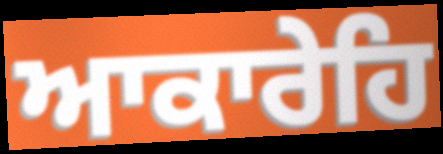
ਆਕਾਰੇਹਿ